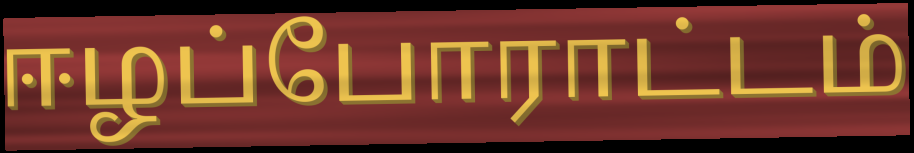
ஈழப்போராட்டம்